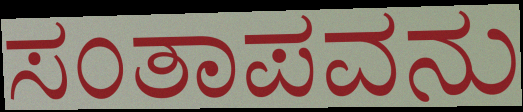
ಸಂತಾಪವನು